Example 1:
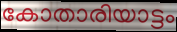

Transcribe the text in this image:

കോതാരിയാട്ടം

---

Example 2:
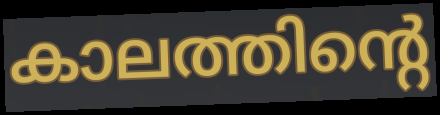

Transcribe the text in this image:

കാലത്തിന്റെ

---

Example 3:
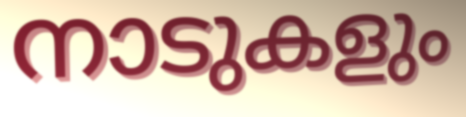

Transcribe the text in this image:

നാടുകളും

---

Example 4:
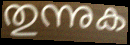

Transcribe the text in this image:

തുന്നുക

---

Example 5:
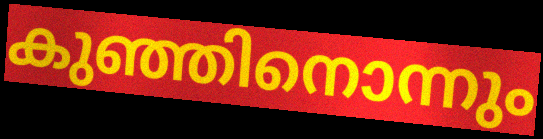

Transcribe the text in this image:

കുഞ്ഞിനൊന്നും